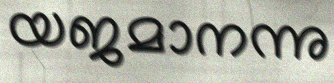
യജമാനന്നു